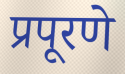
प्रपूरणे